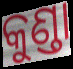
କୁଣ୍ଡା